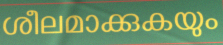
ശീലമാക്കുകയും